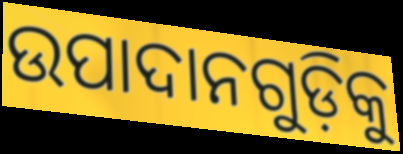
ଉପାଦାନଗୁଡ଼ିକୁ